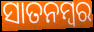
ସାତନମ୍ବର